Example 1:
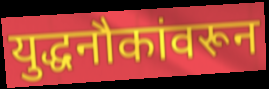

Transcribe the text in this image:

युद्धनौकांवरून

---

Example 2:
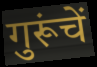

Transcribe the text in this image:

गुरूंचें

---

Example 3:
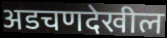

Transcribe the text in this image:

अडचणदेखील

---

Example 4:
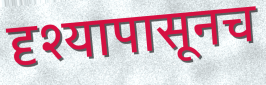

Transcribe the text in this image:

दृश्यापासूनच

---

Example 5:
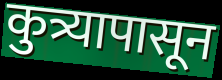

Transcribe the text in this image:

कुत्र्यापासून